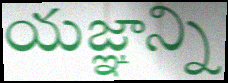
యజ్ఞాన్ని